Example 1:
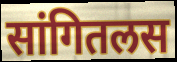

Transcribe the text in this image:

सांगितलस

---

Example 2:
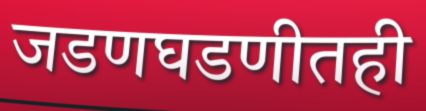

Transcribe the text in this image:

जडणघडणीतही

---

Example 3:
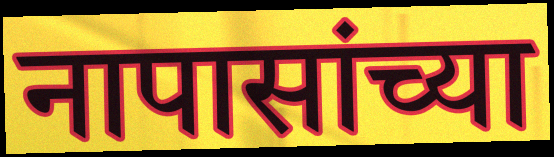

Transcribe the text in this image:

नापासांच्या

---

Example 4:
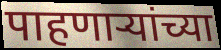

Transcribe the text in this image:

पाहणार्‍यांच्या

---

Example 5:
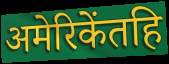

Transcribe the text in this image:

अमेरिकेंतहि